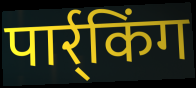
पार्र्किंग